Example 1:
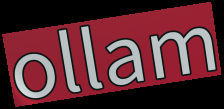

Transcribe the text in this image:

ollam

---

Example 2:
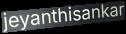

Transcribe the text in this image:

jeyanthisankar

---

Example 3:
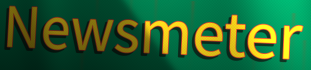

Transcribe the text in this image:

Newsmeter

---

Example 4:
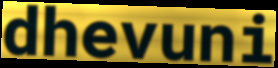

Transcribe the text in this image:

dhevuni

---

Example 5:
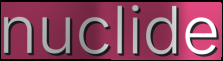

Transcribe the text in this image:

nuclide